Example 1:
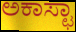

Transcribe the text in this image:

ಅಕಾಸ್ಟಾ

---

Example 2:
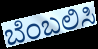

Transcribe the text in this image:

ಬೆಂಬಲಿಸಿ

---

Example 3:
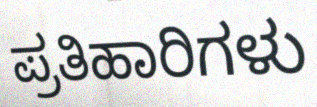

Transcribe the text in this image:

ಪ್ರತಿಹಾರಿಗಳು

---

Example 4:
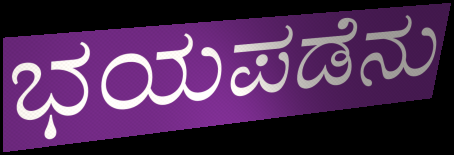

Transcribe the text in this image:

ಭಯಪಡೆನು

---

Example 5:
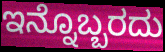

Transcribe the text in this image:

ಇನ್ನೊಬ್ಬರದು